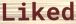
Liked